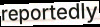
reportedly